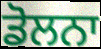
ਡੋਲਨਾ